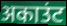
अकाउंट